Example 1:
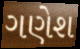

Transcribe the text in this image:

ગણેશ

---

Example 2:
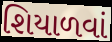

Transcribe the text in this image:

શિયાળવાં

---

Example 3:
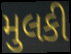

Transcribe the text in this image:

મુલકી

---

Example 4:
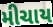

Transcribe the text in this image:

મીચાય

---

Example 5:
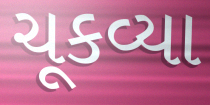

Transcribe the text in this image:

ચૂકવ્યા